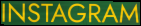
INSTAGRAM